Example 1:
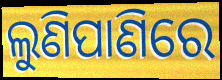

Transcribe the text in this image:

ଲୁଣିପାଣିରେ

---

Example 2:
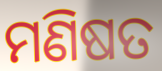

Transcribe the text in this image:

ମଣିଷତ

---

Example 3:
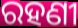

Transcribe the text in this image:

ରହଣୀ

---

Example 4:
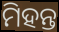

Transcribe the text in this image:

ମିହନ୍ତ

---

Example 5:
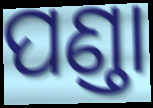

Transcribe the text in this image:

ପଣ୍ଡା